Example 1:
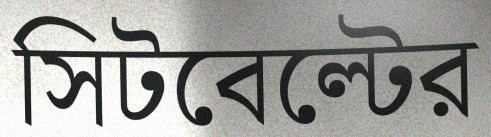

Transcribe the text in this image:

সিটবেল্টের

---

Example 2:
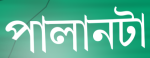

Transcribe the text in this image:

পালানটা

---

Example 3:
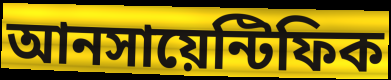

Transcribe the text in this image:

আনসায়েন্টিফিক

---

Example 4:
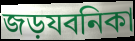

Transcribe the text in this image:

জড়যবনিকা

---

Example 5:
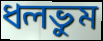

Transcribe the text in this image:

ধলভুম